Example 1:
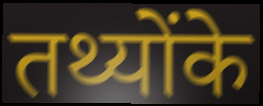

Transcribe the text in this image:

तथ्योंके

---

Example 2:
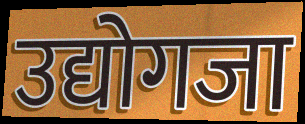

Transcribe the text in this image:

उद्योगजा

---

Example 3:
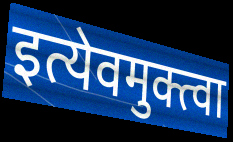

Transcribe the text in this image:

इत्येवमुक्त्वा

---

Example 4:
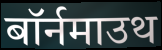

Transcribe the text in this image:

बॉर्नमाउथ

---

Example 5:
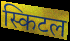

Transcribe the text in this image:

स्किटल